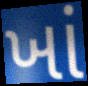
ખાં